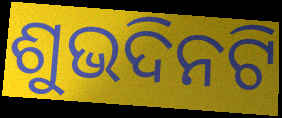
ଶୁଭଦିନଟି